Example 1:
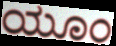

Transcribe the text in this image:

ಯೂಂ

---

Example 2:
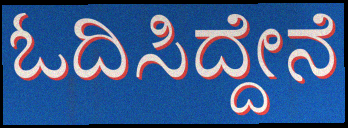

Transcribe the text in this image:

ಓದಿಸಿದ್ದೇನೆ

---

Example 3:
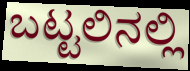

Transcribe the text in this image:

ಬಟ್ಟಲಿನಲ್ಲಿ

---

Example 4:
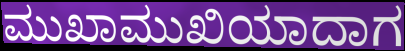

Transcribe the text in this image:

ಮುಖಾಮುಖಿಯಾದಾಗ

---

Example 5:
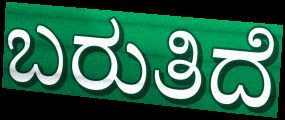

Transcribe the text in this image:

ಬರುತಿದೆ